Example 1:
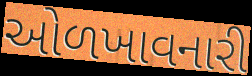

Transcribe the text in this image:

ઓળખાવનારી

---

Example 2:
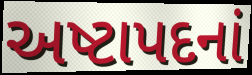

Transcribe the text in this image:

અષ્ટાપદનાં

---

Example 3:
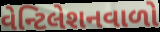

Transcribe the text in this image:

વેન્ટિલેશનવાળો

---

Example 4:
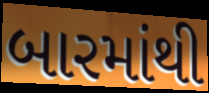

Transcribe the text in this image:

બારમાંથી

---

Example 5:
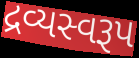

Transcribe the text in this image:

દ્રવ્યસ્વરૂપ